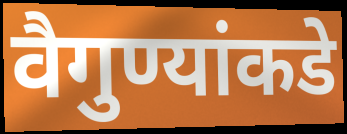
वैगुण्यांकडे